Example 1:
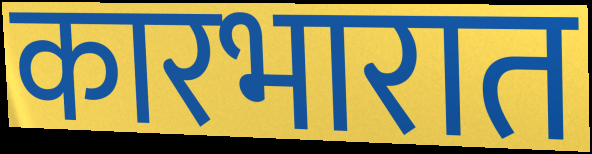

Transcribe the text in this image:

कारभारात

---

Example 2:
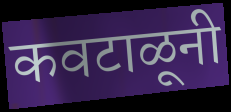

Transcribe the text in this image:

कवटाळूनी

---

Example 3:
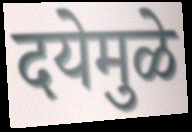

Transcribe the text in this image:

दयेमुळे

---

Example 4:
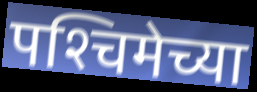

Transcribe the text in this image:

पश्चिमेच्या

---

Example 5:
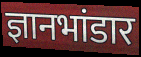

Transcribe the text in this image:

ज्ञानभांडार